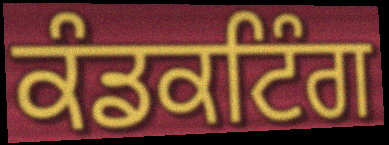
ਕੰਡਕਟਿੰਗ